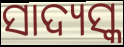
ସାଦ୍ୟସ୍କ